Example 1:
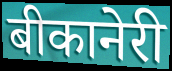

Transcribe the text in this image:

बीकानेरी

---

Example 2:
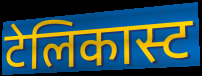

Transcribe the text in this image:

टेलिकास्ट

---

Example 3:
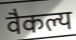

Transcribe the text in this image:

वैकल्य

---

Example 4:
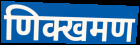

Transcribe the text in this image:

णिक्खमण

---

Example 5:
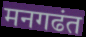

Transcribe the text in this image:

मनगढंत